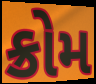
ક્રોમ